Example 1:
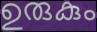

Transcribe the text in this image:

ഉരുകും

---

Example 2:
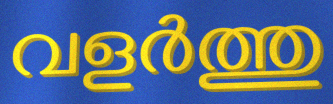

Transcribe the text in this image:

വളർത്തു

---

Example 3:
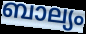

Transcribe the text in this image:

ബാല്യം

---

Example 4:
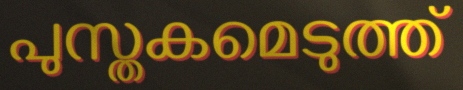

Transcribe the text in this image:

പുസ്തകമെടുത്ത്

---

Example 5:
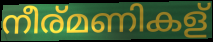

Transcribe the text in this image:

നീര്മണികള്